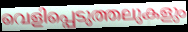
വെളിപ്പെടുത്തലുകളും